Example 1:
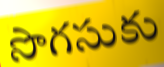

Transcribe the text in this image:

సొగసుకు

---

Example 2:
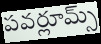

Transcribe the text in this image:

పవర్లూమ్స్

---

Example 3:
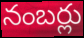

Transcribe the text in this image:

నంబర్లు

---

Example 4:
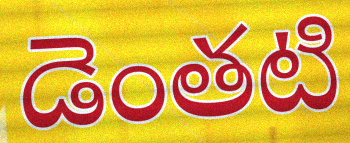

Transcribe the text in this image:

డెంతటి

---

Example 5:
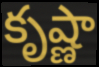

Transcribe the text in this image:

కృష్ణా